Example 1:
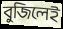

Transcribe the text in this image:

বুজিলেই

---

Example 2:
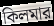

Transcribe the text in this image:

কিলমার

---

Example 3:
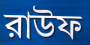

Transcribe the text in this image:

রাউফ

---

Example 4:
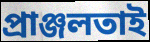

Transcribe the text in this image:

প্রাঞ্জলতাই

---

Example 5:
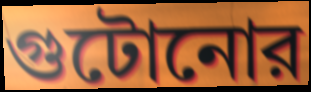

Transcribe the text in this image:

গুটোনোর